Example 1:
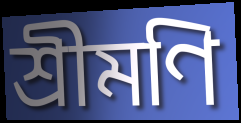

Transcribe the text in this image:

শ্রীমণি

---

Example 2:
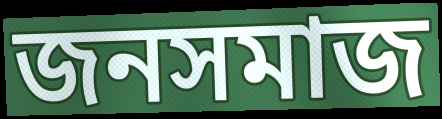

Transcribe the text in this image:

জনসমাজ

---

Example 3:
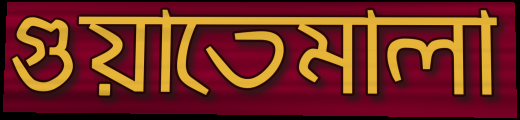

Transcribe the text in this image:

গুয়াতেমালা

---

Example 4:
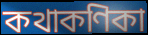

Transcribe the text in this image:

কথাকণিকা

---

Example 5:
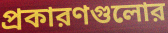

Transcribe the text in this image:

প্রকারণগুলোর